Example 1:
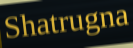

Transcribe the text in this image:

Shatrugna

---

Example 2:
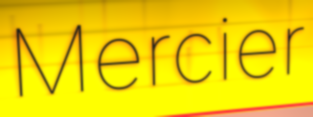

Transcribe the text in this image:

Mercier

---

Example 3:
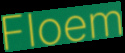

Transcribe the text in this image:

Floem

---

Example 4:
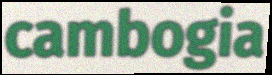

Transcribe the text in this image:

cambogia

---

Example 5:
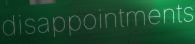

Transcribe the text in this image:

disappointments